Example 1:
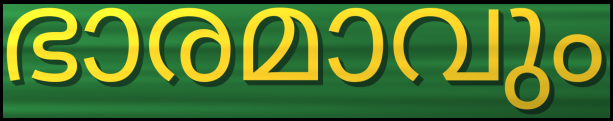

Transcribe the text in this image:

ഭാരമാവും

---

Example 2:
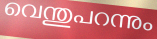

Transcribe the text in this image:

വെന്തുപറന്നും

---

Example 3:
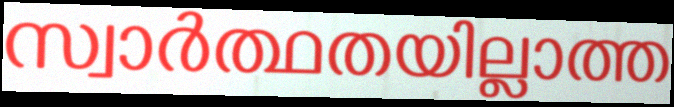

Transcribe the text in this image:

സ്വാർത്ഥതയില്ലാത്ത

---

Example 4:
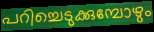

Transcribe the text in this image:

പറിച്ചെടുക്കുമ്പോഴും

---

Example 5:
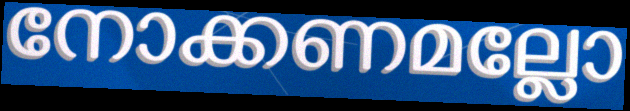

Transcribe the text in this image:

നോക്കണമല്ലോ